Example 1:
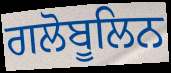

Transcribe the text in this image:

ਗਲੋਬੂਲਿਨ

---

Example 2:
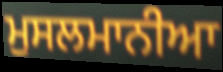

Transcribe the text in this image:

ਮੁਸਲਮਾਨੀਆ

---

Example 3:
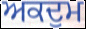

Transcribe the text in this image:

ਅਕਦੁਮ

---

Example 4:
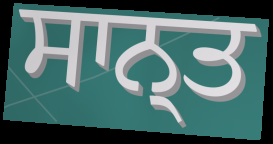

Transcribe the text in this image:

ਸਾਨ੍ਤ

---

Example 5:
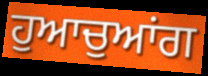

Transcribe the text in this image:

ਹੁਆਚੁਆਂਗ